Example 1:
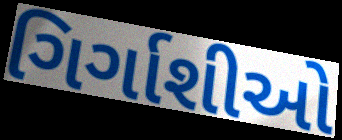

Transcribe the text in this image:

ગિર્ગાશીઓ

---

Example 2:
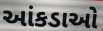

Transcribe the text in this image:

આંકડાઓ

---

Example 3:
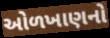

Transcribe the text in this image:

ઓળખાણનો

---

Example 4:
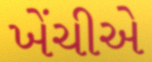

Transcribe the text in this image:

ખેંચીએ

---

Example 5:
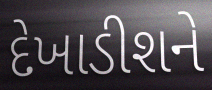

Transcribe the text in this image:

દેખાડીશને